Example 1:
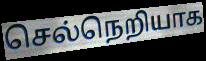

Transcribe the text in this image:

செல்நெறியாக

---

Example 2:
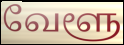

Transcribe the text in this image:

வேளூ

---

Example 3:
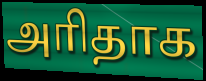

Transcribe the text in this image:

அரிதாக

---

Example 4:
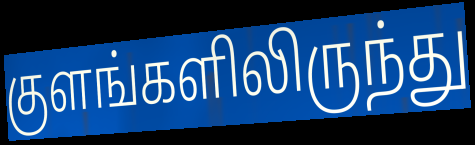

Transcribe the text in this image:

குளங்களிலிருந்து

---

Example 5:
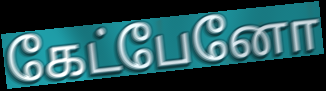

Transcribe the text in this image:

கேட்பேனோ